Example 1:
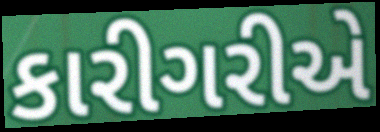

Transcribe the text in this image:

કારીગરીએ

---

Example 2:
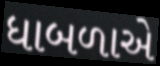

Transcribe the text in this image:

ધાબળાએ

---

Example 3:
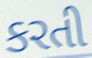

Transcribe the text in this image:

કરતી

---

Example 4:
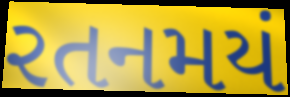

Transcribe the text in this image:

રતનમયં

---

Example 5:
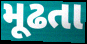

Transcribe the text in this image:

મૂઢતા